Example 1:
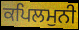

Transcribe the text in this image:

ਕਪਿਲਮੁਨੀ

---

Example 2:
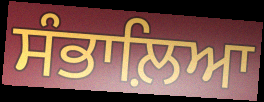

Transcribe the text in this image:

ਸੰਭਾਲ਼ਿਆ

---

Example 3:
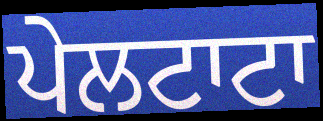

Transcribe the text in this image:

ਪੇਲਟਾਟਾ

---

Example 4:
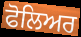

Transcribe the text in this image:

ਫੋਲਿਅਰ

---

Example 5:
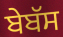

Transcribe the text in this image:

ਬੇਬੱਸ